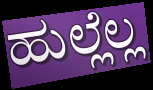
ಹುಲ್ಲೆಲ್ಲ